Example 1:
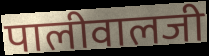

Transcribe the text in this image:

पालीवालजी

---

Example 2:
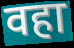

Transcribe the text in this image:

वहा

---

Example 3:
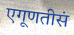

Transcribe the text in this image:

एगूणतीसं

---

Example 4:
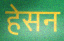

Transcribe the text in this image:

हेसन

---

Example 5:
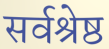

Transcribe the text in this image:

सर्वश्रेष्ठ